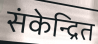
संकेन्द्रित